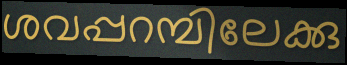
ശവപ്പറമ്പിലേക്കു